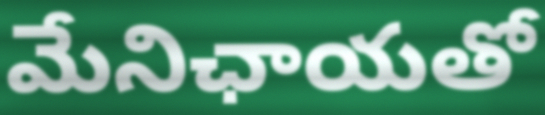
మేనిఛాయతో